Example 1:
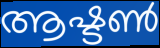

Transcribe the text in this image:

ആഷ്ടൺ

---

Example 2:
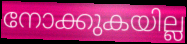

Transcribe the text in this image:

നോക്കുകയില്ല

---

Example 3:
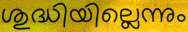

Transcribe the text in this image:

ശുദ്ധിയില്ലെന്നും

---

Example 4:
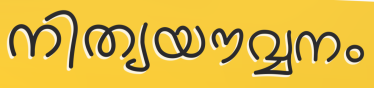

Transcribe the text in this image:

നിത്യയൗവ്വനം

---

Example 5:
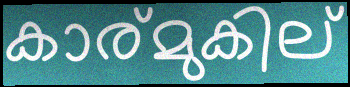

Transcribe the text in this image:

കാര്മുകില്